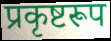
प्रकृष्टरूप